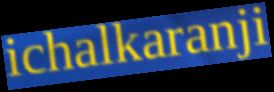
ichalkaranji